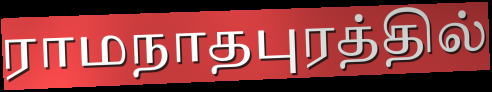
ராமநாதபுரத்தில்